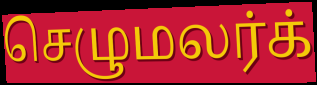
செழுமலர்க்